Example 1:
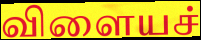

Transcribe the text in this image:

விளையச்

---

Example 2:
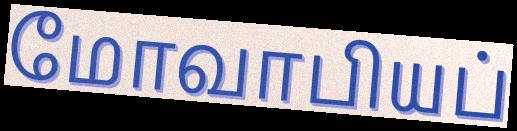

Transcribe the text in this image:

மோவாபியப்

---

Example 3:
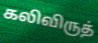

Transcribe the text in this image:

கலிவிருத்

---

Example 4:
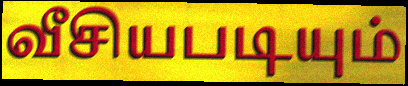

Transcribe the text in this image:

வீசியபடியும்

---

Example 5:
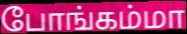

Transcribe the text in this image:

போங்கம்மா